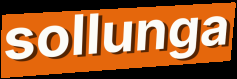
sollunga